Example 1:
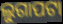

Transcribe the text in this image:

ଲୁଗାପଟା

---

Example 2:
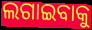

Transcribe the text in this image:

ଲଗାଇବାକୁ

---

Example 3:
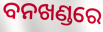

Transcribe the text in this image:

ବନଖଣ୍ଡରେ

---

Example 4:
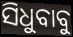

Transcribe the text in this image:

ସିଧୁବାବୁ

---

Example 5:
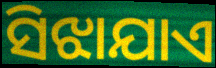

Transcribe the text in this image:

ସିଝାଯାଏ